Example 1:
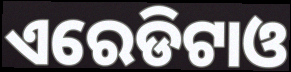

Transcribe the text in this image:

ଏରେଡିଟାଓ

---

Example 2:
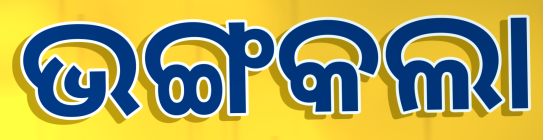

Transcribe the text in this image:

ଭଙ୍ଗକଲା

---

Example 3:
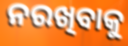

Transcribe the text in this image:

ନରଖିବାକୁ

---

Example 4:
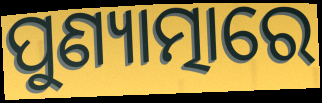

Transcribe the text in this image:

ପୁଣ୍ୟାତ୍ମାରେ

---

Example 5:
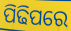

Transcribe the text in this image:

ପିଢିପରେ